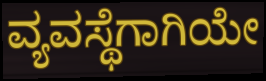
ವ್ಯವಸ್ಥೆಗಾಗಿಯೇ